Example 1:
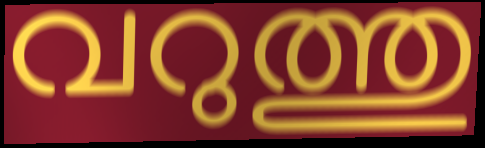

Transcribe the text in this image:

വറുത്തു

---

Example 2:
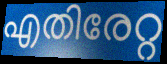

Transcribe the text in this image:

എതിരേറ്റ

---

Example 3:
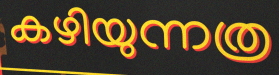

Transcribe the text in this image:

കഴിയുന്നത്ര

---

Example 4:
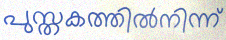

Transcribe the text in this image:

പുസ്തകത്തിൽനിന്ന്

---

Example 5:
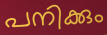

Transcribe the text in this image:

പനിക്കും